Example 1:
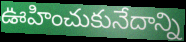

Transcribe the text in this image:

ఊహించుకునేదాన్ని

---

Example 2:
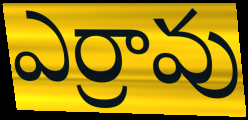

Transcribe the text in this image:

ఎర్రావు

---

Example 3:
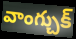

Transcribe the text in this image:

వాంగ్చుక్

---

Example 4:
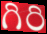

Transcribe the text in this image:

గిరి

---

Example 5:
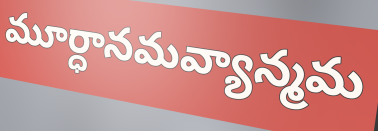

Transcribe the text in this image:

మూర్ధానమవ్యాన్మమ